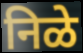
निळे